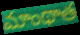
మాంథాత